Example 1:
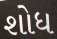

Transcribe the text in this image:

શોધ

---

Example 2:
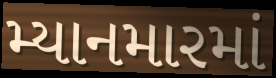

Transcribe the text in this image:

મ્યાનમારમાં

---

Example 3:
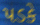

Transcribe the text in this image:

પડકે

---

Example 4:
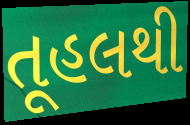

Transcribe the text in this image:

તૂહલથી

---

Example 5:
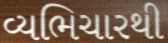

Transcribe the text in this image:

વ્યભિચારથી